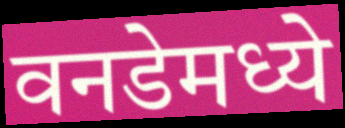
वनडेमध्ये